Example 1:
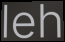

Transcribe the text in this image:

leh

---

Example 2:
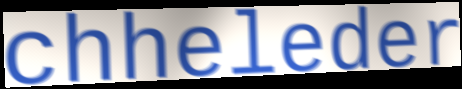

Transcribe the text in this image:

chheleder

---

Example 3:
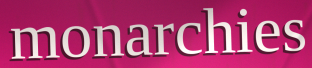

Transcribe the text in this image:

monarchies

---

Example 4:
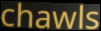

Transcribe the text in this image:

chawls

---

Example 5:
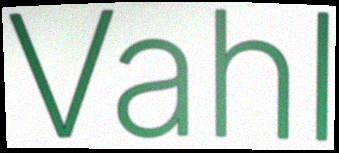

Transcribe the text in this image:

Vahl